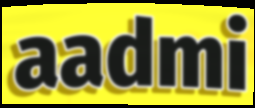
aadmi